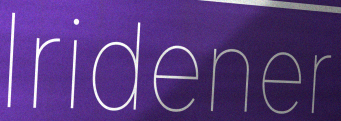
lridener